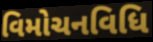
વિમોચનવિધિ